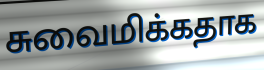
சுவைமிக்கதாக